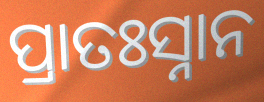
ପ୍ରାତଃସ୍ନାନ